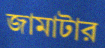
জামাটার